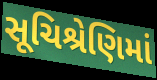
સૂચિશ્રેણિમાં